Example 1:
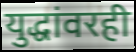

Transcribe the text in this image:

युद्धांवरही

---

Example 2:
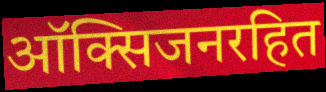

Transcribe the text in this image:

ऑक्सिजनरहित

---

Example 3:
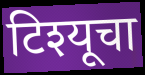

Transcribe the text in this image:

टिश्यूचा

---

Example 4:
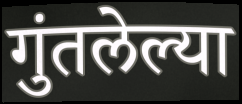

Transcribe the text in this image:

गुंतलेल्या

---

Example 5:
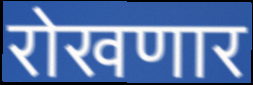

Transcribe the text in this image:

रोखणार